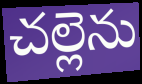
చల్లెను